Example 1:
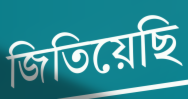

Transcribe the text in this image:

জিতিয়েছি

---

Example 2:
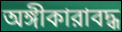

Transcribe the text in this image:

অঙ্গীকারাবদ্ধ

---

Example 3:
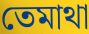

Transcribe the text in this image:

তেমাথা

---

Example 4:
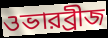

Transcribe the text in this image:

ওভারব্রীজ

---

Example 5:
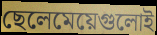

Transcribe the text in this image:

ছেলেমেয়েগুলোই